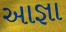
આજ્ઞા